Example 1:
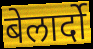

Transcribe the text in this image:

बेलार्दो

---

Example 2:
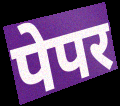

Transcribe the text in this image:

पेपर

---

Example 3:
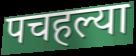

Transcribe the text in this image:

पचहल्या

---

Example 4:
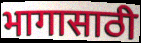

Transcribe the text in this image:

भागासाठी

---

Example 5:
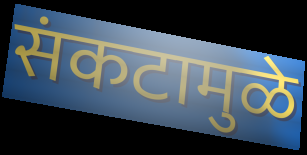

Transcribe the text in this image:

संकटामुळे